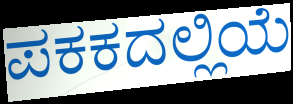
ಪಕಕದಲ್ಲಿಯೆ